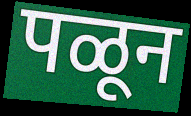
पळून